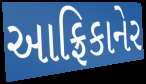
આફ્રિકાનેર